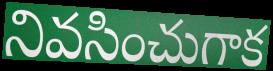
నివసించుగాక